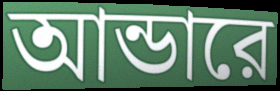
আন্ডারে